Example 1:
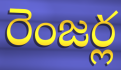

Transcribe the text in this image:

రెంజర్ల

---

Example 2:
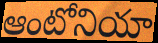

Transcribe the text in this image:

ఆంటోనియా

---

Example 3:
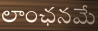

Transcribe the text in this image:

లాంఛనమే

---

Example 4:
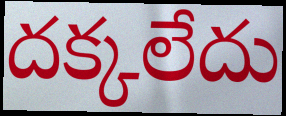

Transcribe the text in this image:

దక్కలేదు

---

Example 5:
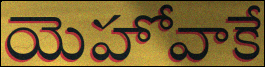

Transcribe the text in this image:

యెహోవాకే